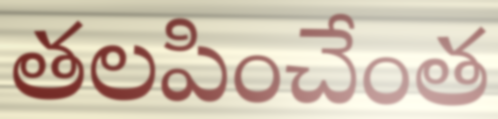
తలపించేంత